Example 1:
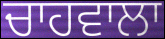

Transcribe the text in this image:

ਚਾਹਵਾਲਾ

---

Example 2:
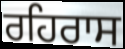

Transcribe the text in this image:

ਰਹਿਰਾਸ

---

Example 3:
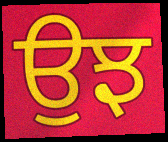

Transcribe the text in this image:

ਉਝ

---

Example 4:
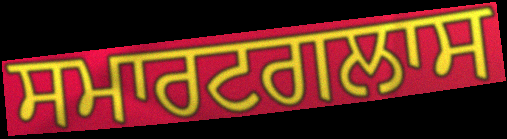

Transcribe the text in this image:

ਸਮਾਰਟਗਲਾਸ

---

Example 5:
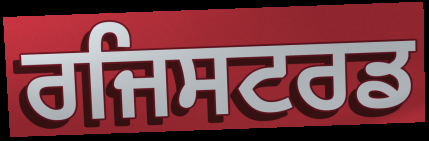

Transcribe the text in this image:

ਰਜਿਸਟਰਡ